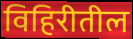
विहिरीतील